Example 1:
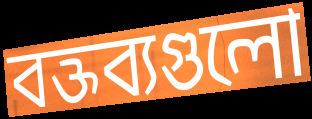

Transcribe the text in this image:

বক্তব্যগুলো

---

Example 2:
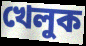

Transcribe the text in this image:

খেলুক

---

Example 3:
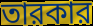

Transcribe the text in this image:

তারকার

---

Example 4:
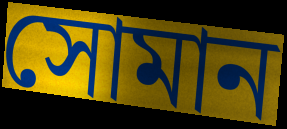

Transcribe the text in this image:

সোমান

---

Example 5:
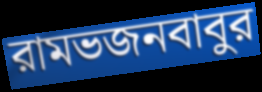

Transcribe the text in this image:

রামভজনবাবুর